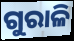
ଗୁରାଳି